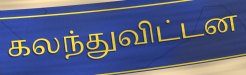
கலந்துவிட்டன